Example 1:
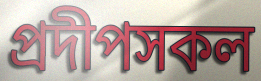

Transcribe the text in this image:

প্রদীপসকল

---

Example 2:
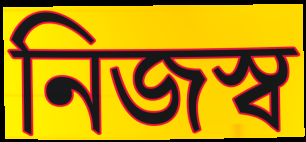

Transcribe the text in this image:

নিজস্ব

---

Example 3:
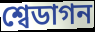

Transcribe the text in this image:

শ্বেডাগন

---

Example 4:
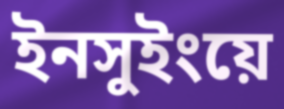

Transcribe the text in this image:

ইনসুইংয়ে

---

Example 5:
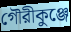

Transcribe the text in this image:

গৌরীকুঞ্জে